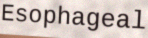
Esophageal